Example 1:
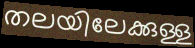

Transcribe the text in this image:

തലയിലേക്കുള്ള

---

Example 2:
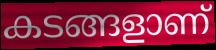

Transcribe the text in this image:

കടങ്ങളാണ്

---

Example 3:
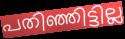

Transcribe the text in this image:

പതിഞ്ഞിട്ടില്ല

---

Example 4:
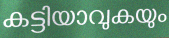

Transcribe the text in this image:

കട്ടിയാവുകയും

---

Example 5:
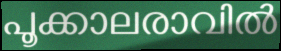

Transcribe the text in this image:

പൂക്കാലരാവിൽ